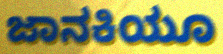
ಜಾನಕಿಯೂ